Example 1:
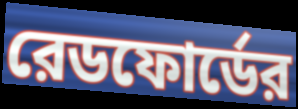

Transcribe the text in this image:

রেডফোর্ডের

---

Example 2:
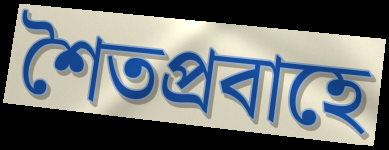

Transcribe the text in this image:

শৈতপ্রবাহে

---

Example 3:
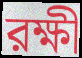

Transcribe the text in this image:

রক্ষী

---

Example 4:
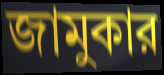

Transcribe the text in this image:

জামুকার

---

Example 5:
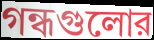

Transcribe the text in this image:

গন্ধগুলোর